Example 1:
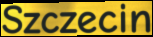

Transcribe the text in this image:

Szczecin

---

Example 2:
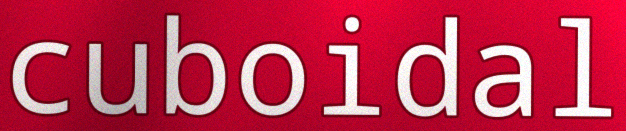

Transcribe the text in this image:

cuboidal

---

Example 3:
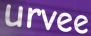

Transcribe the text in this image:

urvee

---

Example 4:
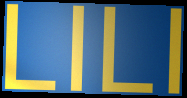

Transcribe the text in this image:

LILI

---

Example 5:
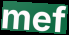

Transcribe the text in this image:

mef